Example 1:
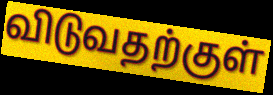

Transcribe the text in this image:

விடுவதற்குள்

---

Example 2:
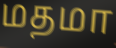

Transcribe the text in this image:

மதமா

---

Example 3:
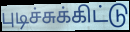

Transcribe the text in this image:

புடிச்சுக்கிட்டு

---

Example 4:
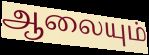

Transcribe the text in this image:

ஆலையும்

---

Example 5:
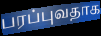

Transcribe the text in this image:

பரப்புவதாக